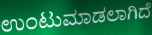
ಉಂಟುಮಾಡಲಾಗಿದೆ